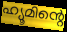
ഹ്യൂമിന്റെ